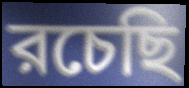
রচেছি